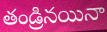
తండ్రినయినా